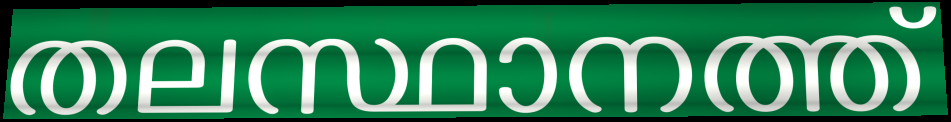
തലസ്ഥാനത്ത്